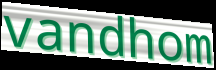
vandhom